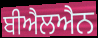
ਬੀਐਲਐਨ